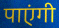
पाएंगी